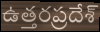
ఉత్తరప్రదేశ్